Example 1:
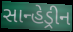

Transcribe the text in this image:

સાન્હેડ્રીન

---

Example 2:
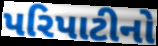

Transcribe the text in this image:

પરિપાટીનો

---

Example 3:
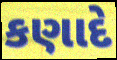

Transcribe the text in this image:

કણાદે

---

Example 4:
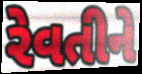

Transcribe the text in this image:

રેવતીને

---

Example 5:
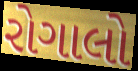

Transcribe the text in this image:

રોગાલો